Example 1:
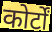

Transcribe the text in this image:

कोर्टों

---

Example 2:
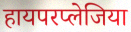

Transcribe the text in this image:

हायपरप्लेजिया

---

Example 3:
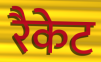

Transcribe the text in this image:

रैकेट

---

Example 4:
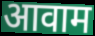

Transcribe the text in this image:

आवाम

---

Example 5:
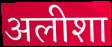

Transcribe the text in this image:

अलीशा